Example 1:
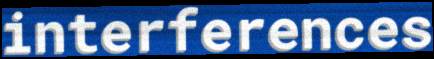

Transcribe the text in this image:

interferences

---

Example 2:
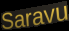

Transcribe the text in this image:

Saravu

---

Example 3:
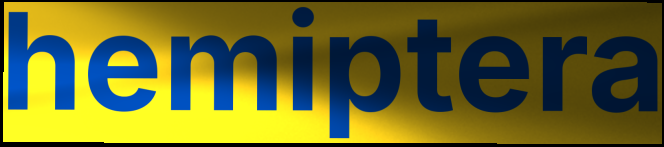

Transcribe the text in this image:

hemiptera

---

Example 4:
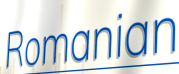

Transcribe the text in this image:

Romanian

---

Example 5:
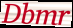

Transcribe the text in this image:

Dbmr